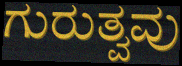
ಗುರುತ್ವವು